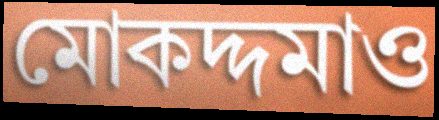
মোকদ্দমাও